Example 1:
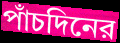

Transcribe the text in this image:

পাঁচদিনের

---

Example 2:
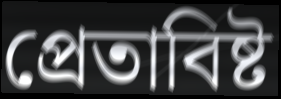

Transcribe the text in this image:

প্রেতাবিষ্ট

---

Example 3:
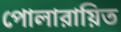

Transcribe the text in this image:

পোলারায়িত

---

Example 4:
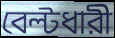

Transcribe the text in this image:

বেল্টধারী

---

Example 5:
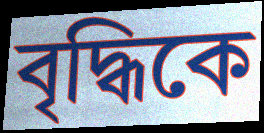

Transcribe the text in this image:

বৃদ্ধিকে